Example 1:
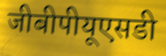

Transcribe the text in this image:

जीबीपीयूएसडी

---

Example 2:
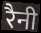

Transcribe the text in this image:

रैनी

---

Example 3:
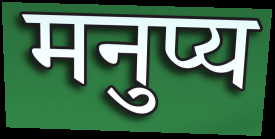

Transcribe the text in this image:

मनुप्य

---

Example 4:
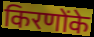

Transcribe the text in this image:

किरणोंके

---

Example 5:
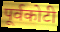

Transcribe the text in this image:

पूर्वकोटी